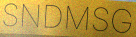
SNDMSG